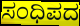
ಸಂಧಿಪದ